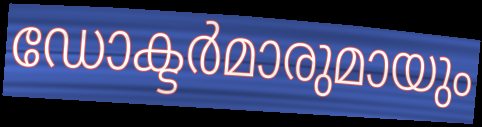
ഡോക്ടർമാരുമായും